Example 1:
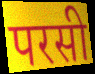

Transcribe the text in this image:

परसी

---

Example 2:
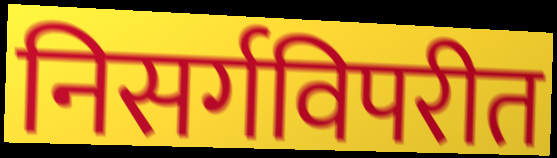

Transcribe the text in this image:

निसर्गविपरीत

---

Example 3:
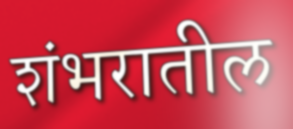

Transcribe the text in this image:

शंभरातील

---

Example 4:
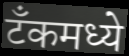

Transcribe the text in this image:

टॅंकमध्ये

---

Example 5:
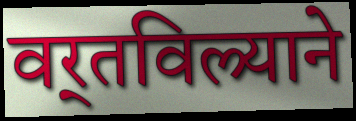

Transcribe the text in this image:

वर्तविल्याने